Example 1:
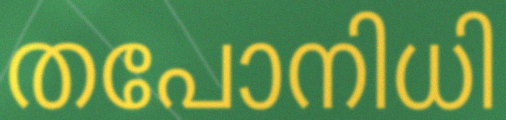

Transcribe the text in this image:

തപോനിധി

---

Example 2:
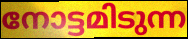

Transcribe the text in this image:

നോട്ടമിടുന്ന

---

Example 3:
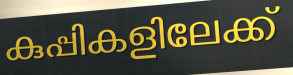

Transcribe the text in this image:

കുപ്പികളിലേക്ക്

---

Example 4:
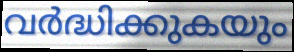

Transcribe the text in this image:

വർദ്ധിക്കുകയും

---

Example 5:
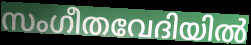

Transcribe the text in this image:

സംഗീതവേദിയിൽ